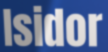
Isidor